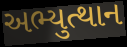
અભ્યુત્થાન